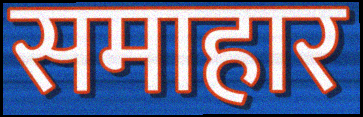
समाहार